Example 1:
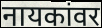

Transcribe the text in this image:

नायकांवर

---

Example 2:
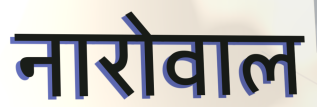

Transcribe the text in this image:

नारोवाल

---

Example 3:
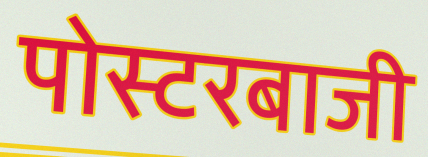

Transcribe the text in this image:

पोस्टरबाजी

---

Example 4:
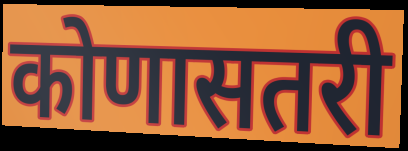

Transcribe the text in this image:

कोणासतरी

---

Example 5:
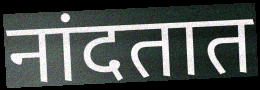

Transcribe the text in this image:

नांदतात